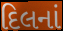
દિલનાં